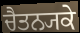
ਚੈਤਨ੍ਯਕੇ